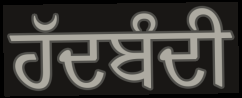
ਹੱਦਬੰਦੀ